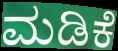
ಮಡಿಕೆ